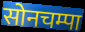
सोनचम्पा